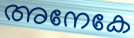
അനേകേ